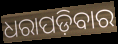
ଧରାପଡ଼ିବାର